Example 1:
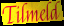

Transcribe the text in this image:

Tilmeld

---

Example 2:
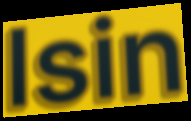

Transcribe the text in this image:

Isin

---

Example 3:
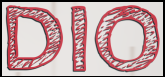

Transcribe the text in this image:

DIO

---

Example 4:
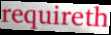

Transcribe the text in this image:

requireth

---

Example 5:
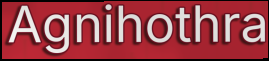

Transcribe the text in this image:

Agnihothra